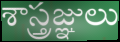
శాస్త్రజ్ఞులు